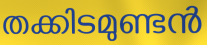
തക്കിടമുണ്ടൻ